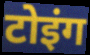
टोइंग